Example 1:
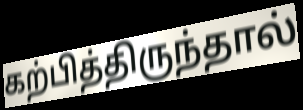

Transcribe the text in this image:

கற்பித்திருந்தால்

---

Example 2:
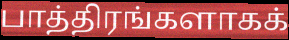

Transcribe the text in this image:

பாத்திரங்களாகக்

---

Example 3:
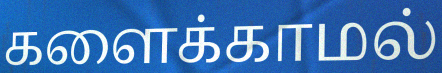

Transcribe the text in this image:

களைக்காமல்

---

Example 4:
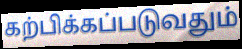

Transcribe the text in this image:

கற்பிக்கப்படுவதும்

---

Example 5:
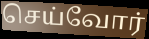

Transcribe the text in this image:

செய்வோர்